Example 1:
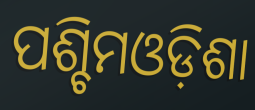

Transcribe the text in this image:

ପଶ୍ଚିମଓଡ଼ିଶା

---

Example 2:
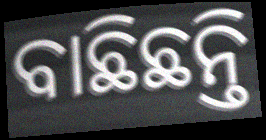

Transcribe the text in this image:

ବାଛିଛନ୍ତି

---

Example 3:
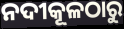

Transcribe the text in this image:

ନଦୀକୂଳଠାରୁ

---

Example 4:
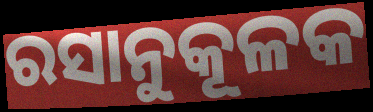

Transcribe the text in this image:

ରସାନୁକୂଳକ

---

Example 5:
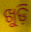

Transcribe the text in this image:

ଖୁଡ଼ି